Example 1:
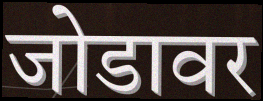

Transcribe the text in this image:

जोडावर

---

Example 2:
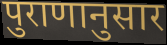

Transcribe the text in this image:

पुराणानुसार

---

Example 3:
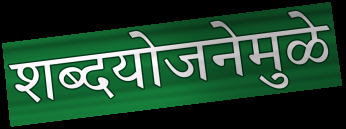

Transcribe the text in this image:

शब्दयोजनेमुळे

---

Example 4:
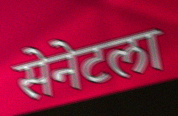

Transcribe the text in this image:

सेनेटला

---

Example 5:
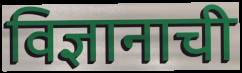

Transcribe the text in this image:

विज्ञानाची